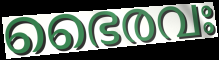
ഭൈരവഃ